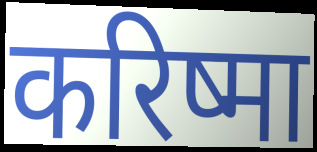
करिष्मा